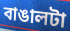
বাঙালটা